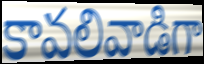
కావలివాడిగా